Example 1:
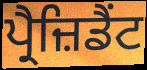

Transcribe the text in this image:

ਪ੍ਰੈਜ਼ਿਡੈਂਟ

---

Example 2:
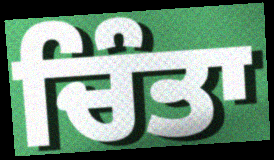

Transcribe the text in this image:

ਚਿੰਤਾ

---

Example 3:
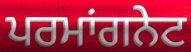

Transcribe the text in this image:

ਪਰਮਾਂਗਨੇਟ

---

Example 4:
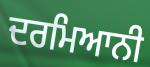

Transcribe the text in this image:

ਦਰਮਿਆਨੀ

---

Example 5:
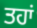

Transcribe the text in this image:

ਤਹਾਂ